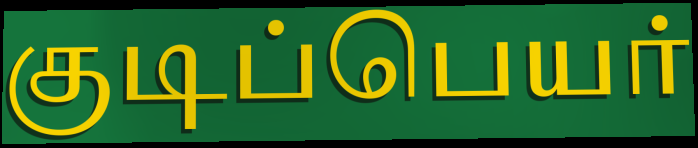
குடிப்பெயர்